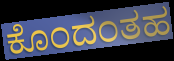
ಕೊಂದಂತಹ